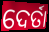
ଦେର୍ତା